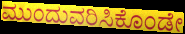
ಮುಂದುವರಿಸಿಕೊಂಡೇ